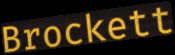
Brockett